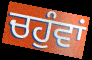
ਚਹੁੰਵਾਂ